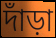
দাঁড়া